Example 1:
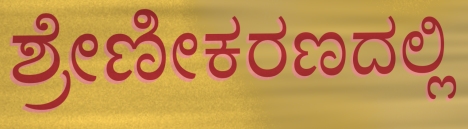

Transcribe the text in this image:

ಶ್ರೇಣೀಕರಣದಲ್ಲಿ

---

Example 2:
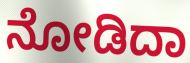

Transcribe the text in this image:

ನೋಡಿದಾ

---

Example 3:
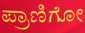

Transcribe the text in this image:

ಪ್ರಾಣಿಗೋ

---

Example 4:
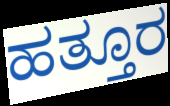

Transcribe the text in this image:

ಹತ್ತೂರ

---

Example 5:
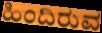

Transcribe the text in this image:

ಹಿಂದಿರುವ